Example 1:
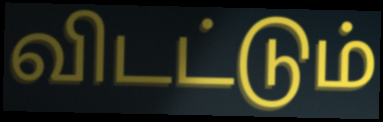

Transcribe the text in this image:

விடட்டும்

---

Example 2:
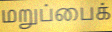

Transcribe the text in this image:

மறுப்பைக்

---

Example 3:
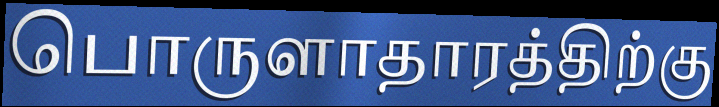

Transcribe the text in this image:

பொருளாதாரத்திற்கு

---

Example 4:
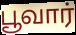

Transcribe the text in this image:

பூவார்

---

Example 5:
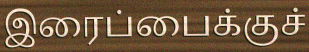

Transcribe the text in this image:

இரைப்பைக்குச்